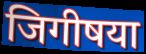
जिगीषया